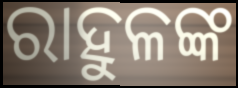
ରାହୁଳଙ୍କ